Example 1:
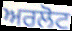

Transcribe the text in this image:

ਅਰਲੋਟ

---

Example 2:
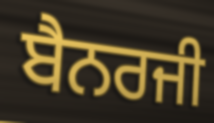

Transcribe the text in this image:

ਬੈਨਰਜੀ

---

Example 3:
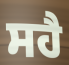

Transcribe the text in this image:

ਸਹੈ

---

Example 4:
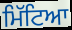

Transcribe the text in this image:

ਮਿੱਟਿਆ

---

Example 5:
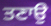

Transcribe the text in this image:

ਤਣਾਉ